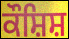
ਕੌਸ਼ਿਸ਼